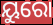
ୟୁରୋ